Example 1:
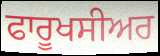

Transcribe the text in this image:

ਫਾਰੂਖਸੀਅਰ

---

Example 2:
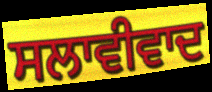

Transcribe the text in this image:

ਸਲਾਵੀਵਾਦ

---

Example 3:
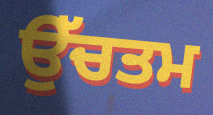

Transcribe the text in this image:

ਉੱਚਤਮ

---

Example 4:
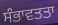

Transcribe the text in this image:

ਸੰਭਾਵਤਤਾ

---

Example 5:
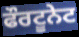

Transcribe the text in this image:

ਫੌਰਟੂਨੇਟ